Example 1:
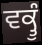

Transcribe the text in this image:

ਵਕ੍ਤੁੰ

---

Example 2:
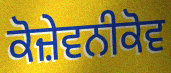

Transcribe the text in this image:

ਕੋਜ਼ੇਵਨੀਕੋਵ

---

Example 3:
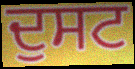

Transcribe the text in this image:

ਦੁਸਟ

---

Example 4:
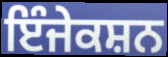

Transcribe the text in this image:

ਇੰਜੇਕਸ਼ਨ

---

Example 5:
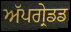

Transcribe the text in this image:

ਅੱਪਗ੍ਰੇਡਡ